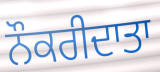
ਨੌਕਰੀਦਾਤਾ